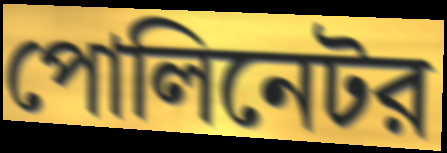
পোলিনেটর